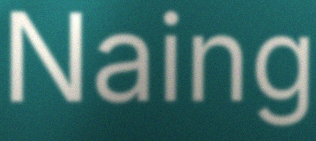
Naing